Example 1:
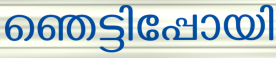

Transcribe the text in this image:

ഞെട്ടിപ്പോയി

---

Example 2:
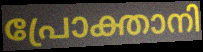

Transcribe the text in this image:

പ്രോക്താനി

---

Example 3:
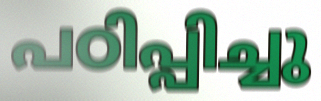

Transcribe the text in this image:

പഠിപ്പിച്ചു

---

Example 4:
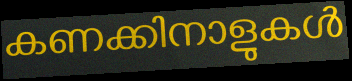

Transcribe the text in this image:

കണക്കിനാളുകൾ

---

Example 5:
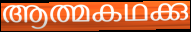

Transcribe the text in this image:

ആത്മകഥക്കു